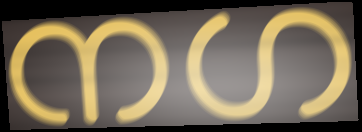
നഗ